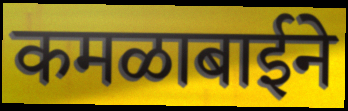
कमळाबाईने